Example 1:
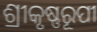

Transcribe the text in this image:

ଶ୍ରୀକୃଷ୍ଣରୂପୀ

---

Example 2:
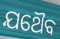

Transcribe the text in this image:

ଯଥୈବ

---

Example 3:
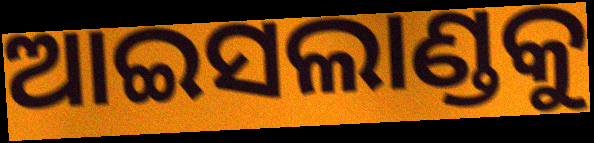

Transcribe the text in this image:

ଆଇସଲାଣ୍ଡକୁ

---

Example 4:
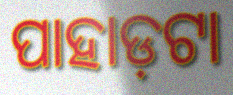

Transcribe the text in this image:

ପାହାଡ଼ଟା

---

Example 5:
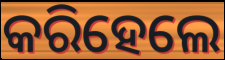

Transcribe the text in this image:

କରିହେଲେ